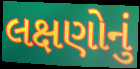
લક્ષણોનું